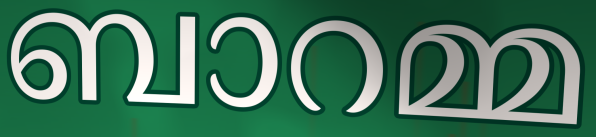
ബാറമ്മ